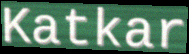
Katkar